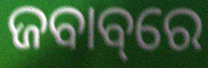
ଜବାବ୍‌ରେ